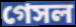
গেসল